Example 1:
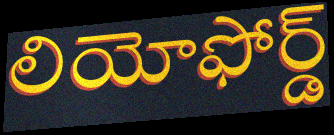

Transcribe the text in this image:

లియోఫోర్డ్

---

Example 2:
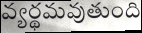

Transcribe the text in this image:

వ్యర్థమవుతుంది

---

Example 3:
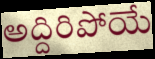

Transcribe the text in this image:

అద్దిరిపోయే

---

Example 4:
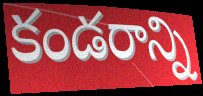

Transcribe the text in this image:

కండరాన్ని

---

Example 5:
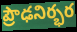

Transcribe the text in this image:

ప్రౌఢనిర్భర